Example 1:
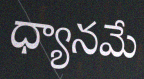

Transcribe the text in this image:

ధ్యానమే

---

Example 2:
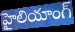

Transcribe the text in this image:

హైలియాంగ్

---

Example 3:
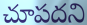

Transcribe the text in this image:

చూపదని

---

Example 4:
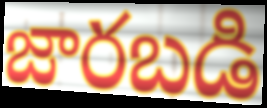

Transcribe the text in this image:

జారబడి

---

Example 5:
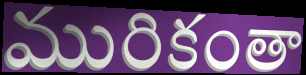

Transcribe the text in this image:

మురికంతా